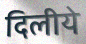
दिलीये